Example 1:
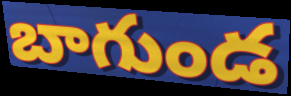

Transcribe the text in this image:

బాగుండ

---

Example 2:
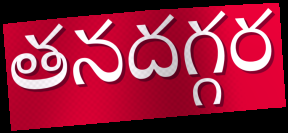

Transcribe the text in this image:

తనదగ్గర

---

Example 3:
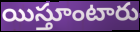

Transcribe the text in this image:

యిస్తూంటారు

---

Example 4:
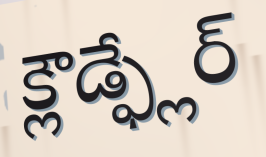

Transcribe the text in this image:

క్లౌడ్ఫ్లేర్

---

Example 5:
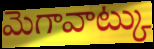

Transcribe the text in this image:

మెగావాట్కు